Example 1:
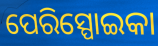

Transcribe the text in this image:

ପେରିସ୍ପୋଇକା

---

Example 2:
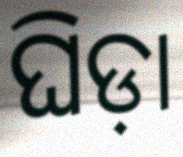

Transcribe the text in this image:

ଘିଡ଼ା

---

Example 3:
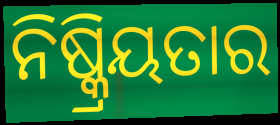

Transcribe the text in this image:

ନିଷ୍କ୍ରିୟତାର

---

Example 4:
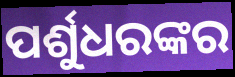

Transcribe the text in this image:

ପର୍ଶୁଧରଙ୍କର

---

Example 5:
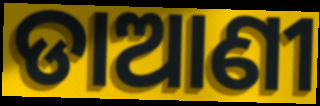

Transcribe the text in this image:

ଡାଆଣୀ